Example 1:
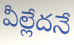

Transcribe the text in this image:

వీల్లేదనే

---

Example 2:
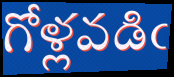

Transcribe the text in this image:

గోళ్లవడిఁ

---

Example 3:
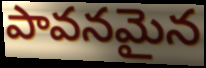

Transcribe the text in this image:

పావనమైన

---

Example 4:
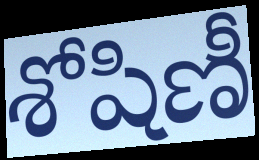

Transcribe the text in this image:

శోషిణీ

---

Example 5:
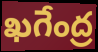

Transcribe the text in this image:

ఖగేంద్ర